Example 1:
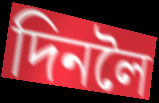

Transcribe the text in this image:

দিনলৈ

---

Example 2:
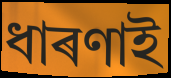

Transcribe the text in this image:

ধাৰণাই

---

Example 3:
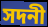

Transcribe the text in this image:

সদনী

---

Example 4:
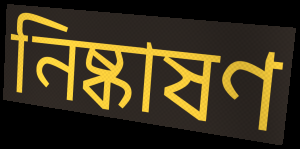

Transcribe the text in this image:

নিষ্কাষণ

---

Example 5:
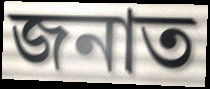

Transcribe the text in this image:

জনাত